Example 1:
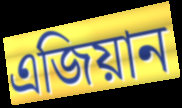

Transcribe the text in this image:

এজিয়ান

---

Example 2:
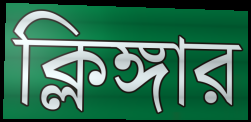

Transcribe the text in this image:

ক্লিঙ্গার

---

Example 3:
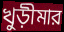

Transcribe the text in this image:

খুড়ীমার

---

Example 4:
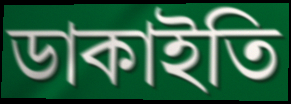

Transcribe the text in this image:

ডাকাইতি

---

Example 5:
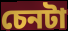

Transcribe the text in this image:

চেনটা